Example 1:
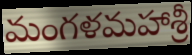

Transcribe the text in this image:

మంగళమహాశ్రీ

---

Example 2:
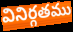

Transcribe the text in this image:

వినిర్గతము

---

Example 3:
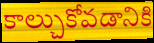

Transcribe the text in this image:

కాల్చుకోవడానికి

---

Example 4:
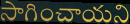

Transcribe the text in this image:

సాగించాయని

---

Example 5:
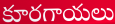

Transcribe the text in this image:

కూరగాయలు